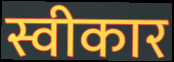
स्वीकार